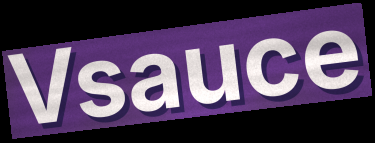
Vsauce